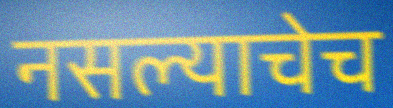
नसल्याचेच